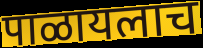
पाळायलाच